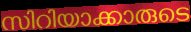
സിറിയാക്കാരുടെ